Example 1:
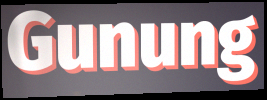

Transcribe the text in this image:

Gunung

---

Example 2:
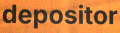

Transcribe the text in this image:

depositor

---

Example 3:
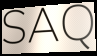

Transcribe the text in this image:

SAQ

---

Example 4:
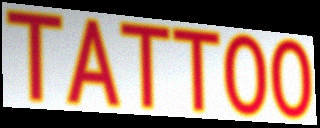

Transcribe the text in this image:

TATTOO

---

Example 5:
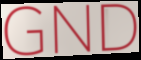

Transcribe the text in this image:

GND